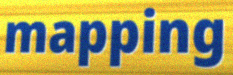
mapping